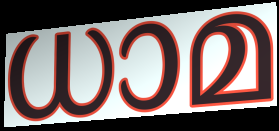
ധാമ